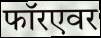
फॉरएवर